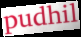
pudhil